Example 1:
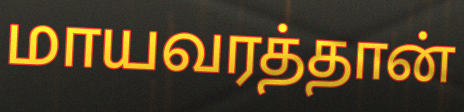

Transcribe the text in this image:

மாயவரத்தான்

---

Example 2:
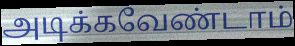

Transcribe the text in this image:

அடிக்கவேண்டாம்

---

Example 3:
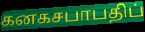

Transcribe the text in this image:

கனகசபாபதிப்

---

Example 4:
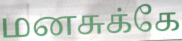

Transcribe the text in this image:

மனசுக்கே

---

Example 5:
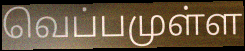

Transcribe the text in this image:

வெப்பமுள்ள